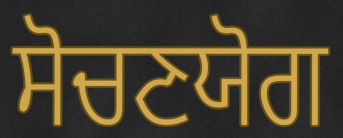
ਸੋਚਣਯੋਗ